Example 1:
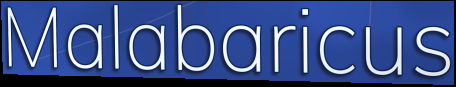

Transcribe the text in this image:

Malabaricus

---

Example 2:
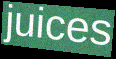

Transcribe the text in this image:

juices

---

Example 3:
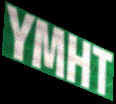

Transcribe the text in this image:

YMHT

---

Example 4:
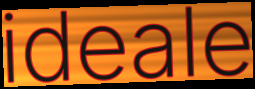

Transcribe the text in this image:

ideale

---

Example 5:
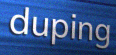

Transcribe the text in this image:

duping